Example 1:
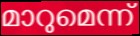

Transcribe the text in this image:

മാറുമെന്ന്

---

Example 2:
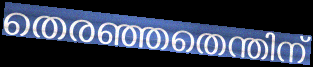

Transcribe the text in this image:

തെരഞ്ഞതെന്തിന്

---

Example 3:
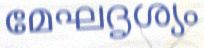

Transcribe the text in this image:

മേഘദൃശ്യം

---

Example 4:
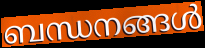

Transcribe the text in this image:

ബന്ധനങ്ങൾ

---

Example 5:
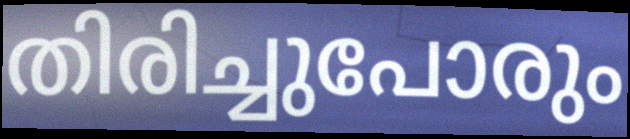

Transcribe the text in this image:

തിരിച്ചുപോരും